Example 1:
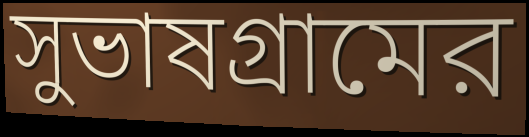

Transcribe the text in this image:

সুভাষগ্রামের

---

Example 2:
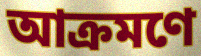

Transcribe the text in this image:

আক্রমণে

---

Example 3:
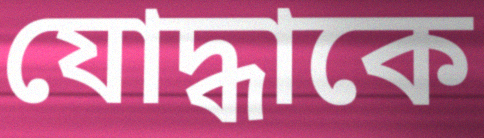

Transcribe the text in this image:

যোদ্ধাকে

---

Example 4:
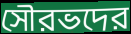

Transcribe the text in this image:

সৌরভদের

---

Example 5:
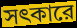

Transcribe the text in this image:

সৎকারে